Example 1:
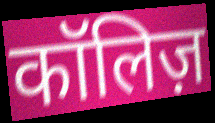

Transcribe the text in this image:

कॉलिज़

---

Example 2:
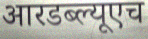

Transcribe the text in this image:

आरडब्ल्यूएच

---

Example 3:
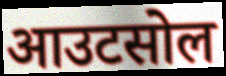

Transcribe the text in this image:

आउटसोल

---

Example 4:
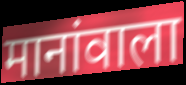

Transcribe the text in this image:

मानांवाला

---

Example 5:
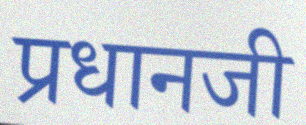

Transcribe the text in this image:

प्रधानजी